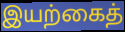
இயற்கைத்